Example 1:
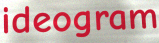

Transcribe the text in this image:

ideogram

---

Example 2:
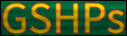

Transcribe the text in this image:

GSHPs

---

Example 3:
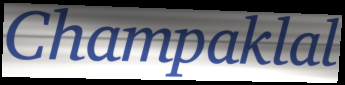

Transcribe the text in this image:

Champaklal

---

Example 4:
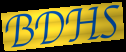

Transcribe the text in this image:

BDHS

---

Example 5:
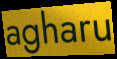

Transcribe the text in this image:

agharu